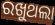
ରଖୁଥଲା